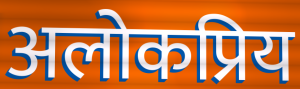
अलोकप्रिय